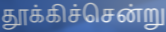
தூக்கிச்சென்று